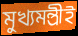
মুখ্যমন্ত্রীই